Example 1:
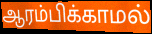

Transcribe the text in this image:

ஆரம்பிக்காமல்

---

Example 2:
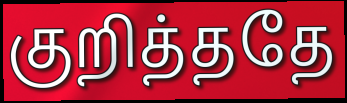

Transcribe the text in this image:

குறித்ததே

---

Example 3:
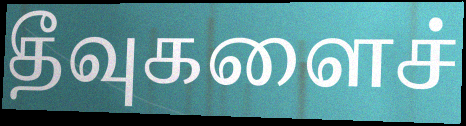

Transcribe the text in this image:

தீவுகளைச்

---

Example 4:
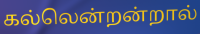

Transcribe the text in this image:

கல்லென்றன்றால்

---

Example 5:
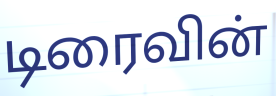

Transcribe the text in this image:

டிரைவின்